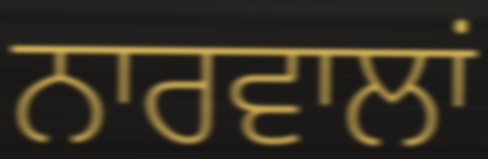
ਨਾਰਵਾਲਾਂ